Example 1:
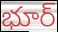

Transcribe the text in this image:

భూర్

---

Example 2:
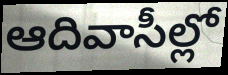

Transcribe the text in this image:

ఆదివాసీల్లో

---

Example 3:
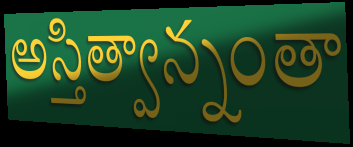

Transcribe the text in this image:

అస్తిత్వాన్నంతా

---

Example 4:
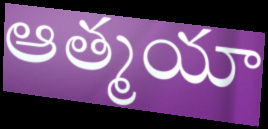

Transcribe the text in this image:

ఆత్మయా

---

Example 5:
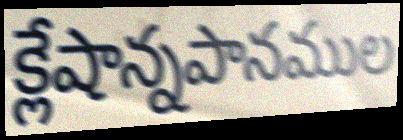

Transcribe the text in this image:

క్లేషాన్నపానముల